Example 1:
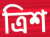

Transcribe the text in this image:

ত্রিশ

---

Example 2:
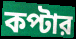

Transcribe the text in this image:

কপ্টার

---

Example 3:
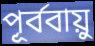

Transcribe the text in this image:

পূর্ববায়ু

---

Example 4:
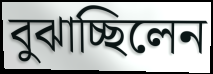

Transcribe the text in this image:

বুঝাচ্ছিলেন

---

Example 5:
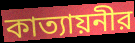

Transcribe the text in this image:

কাত্যায়নীর